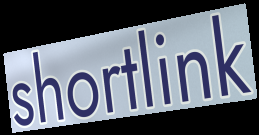
shortlink